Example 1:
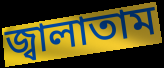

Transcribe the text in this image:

জ্বালাতাম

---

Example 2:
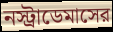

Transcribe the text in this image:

নস্ট্রাডেমাসের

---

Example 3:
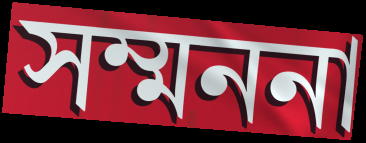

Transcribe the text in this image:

সম্মননা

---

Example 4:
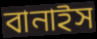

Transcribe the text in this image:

বানাইস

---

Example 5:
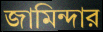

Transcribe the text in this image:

জামিন্দার